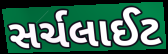
સર્ચલાઈટ